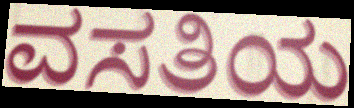
ವಸತಿಯ